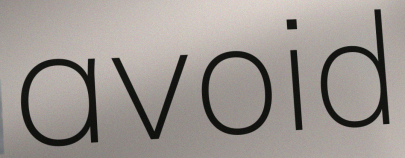
avoid